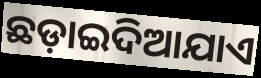
ଛଡ଼ାଇଦିଆଯାଏ